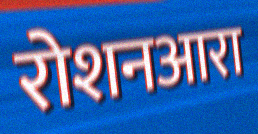
रोशनआरा